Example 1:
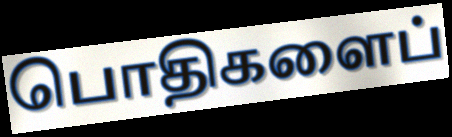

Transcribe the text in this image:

பொதிகளைப்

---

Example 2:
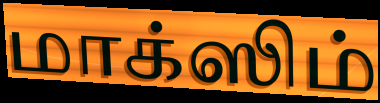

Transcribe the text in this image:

மாக்ஸிம்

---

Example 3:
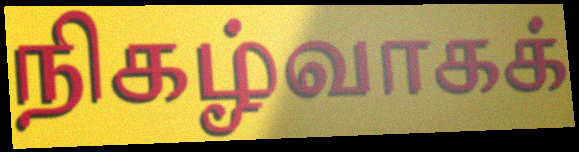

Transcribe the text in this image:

நிகழ்வாகக்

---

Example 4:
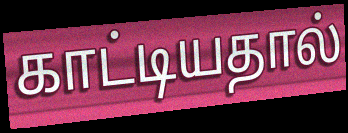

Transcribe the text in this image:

காட்டியதால்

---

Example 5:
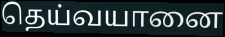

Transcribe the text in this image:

தெய்வயானை